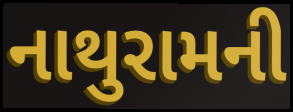
નાથુરામની